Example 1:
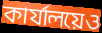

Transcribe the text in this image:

কার্যালয়েও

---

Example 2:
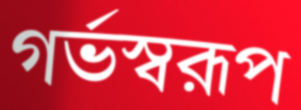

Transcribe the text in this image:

গর্ভস্বরূপ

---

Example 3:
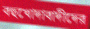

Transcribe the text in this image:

বহুখোদাবাদীদের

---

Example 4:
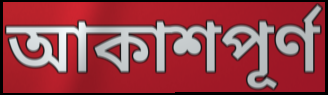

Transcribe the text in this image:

আকাশপূর্ণ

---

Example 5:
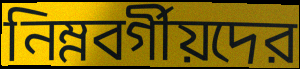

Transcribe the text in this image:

নিম্নবর্গীয়দের